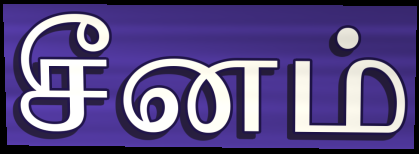
சீனம்